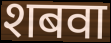
शबवा